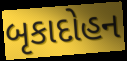
બૃકાદોહન